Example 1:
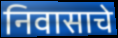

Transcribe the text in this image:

निवासाचे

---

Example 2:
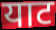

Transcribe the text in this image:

याट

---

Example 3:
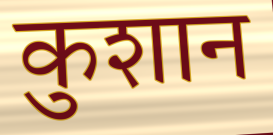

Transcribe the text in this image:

कुशान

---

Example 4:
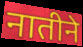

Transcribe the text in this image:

नातीने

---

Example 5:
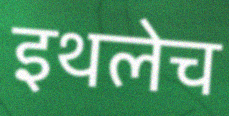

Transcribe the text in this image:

इथलेच